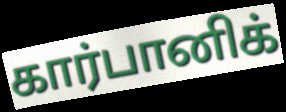
கார்பானிக்